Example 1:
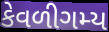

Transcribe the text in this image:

કેવળીગમ્ય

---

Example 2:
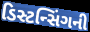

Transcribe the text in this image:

ડિસ્ટન્સિંગની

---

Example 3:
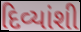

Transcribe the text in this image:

દિવ્યાંશી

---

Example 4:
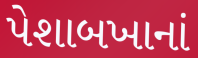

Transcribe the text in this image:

પેશાબખાનાં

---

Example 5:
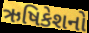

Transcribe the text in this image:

ઋષિકેશનો